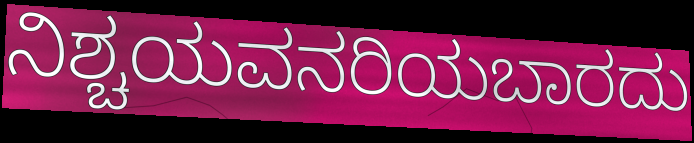
ನಿಶ್ಚಯವನರಿಯಬಾರದು